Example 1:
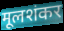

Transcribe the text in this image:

मूलशंकर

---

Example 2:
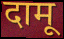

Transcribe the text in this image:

दामू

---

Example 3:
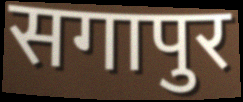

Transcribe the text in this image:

सगापुर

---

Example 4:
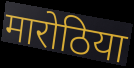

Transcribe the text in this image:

मारोठिया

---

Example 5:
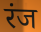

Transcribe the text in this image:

रंज